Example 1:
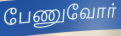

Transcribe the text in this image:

பேணுவோர்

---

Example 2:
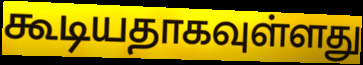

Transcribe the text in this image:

கூடியதாகவுள்ளது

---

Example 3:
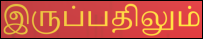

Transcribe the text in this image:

இருப்பதிலும்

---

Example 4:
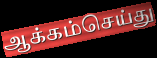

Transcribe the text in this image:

ஆக்கம்செய்து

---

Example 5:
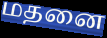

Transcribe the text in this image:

மதனை